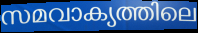
സമവാക്യത്തിലെ